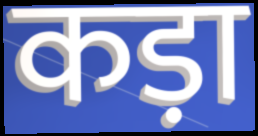
कड़ा